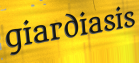
giardiasis